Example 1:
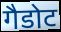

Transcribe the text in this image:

गैडोट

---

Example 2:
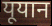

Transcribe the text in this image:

यूयान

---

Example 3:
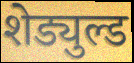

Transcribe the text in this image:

शेड्युल्ड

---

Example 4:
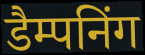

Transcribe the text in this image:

डैम्पनिंग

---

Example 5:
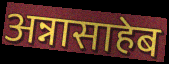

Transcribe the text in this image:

अन्नासाहेब